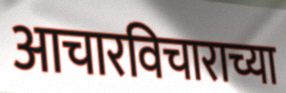
आचारविचाराच्या